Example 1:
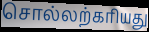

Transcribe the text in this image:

சொல்லற்கரியது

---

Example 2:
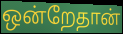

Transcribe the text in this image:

ஒன்றேதான்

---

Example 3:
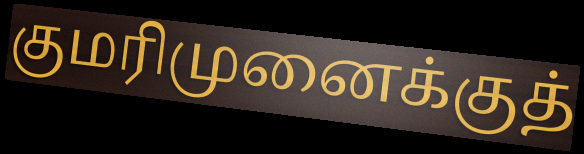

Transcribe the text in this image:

குமரிமுனைக்குத்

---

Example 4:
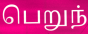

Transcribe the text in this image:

பெறுந்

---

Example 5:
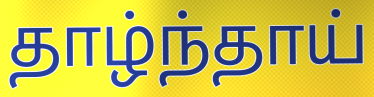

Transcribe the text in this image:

தாழ்ந்தாய்